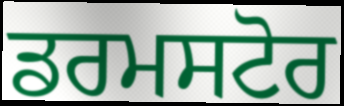
ਡਰਮਸਟੋਰ